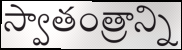
స్వాతంత్రాన్ని